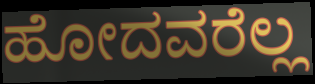
ಹೋದವರೆಲ್ಲ